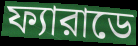
ফ্যারাডে